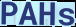
PAHs